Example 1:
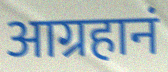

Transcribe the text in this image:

आग्रहानं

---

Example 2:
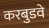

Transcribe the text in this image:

करबुडवे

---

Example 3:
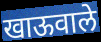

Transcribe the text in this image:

खाऊवाले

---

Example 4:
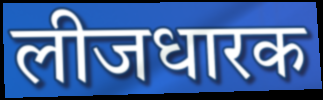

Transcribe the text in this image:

लीजधारक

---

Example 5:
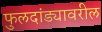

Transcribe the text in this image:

फुलदांड्यावरील